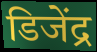
डिजेंद्र